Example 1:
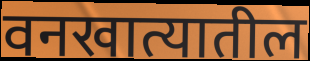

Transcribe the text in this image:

वनखात्यातील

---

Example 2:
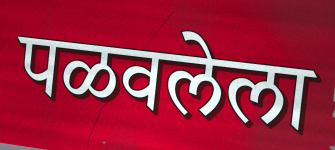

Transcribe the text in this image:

पळवलेला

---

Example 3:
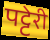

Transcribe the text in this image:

पट्टेरी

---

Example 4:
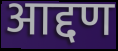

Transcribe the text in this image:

आद्दण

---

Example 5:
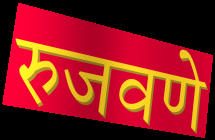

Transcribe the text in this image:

रुजवणे